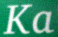
Ka